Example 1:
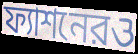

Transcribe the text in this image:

ফ্যাশনেরও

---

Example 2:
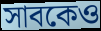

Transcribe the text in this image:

সাবকেও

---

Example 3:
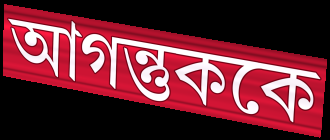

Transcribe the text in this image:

আগন্তুককে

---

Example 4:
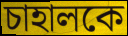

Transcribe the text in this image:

চাহালকে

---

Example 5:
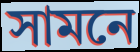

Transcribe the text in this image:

সামনে